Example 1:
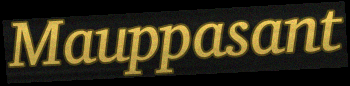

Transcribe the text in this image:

Mauppasant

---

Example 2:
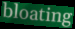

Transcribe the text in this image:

bloating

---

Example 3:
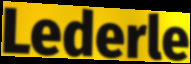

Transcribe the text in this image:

Lederle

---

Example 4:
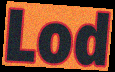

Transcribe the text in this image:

Lod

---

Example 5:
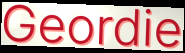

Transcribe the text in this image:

Geordie